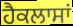
ਹੈਕਲਾਸਾਂ